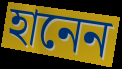
হানেন